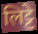
लिट्टे